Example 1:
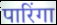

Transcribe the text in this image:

पारिंगा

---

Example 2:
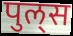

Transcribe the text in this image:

पुल्स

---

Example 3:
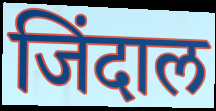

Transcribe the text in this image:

जिंदाल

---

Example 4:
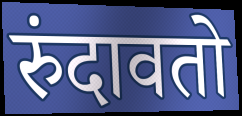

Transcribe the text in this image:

रुंदावतो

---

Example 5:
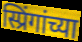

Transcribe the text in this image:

स्प्रिंगांच्या